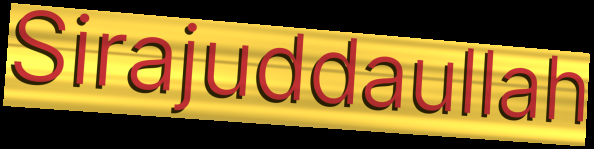
Sirajuddaullah